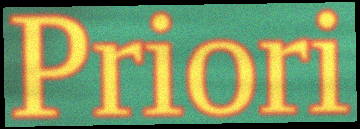
Priori